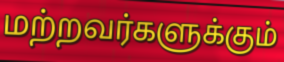
மற்றவர்களுக்கும்